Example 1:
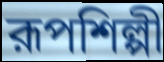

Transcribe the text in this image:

রূপশিল্পী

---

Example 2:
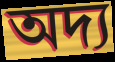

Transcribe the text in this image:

অদ্য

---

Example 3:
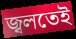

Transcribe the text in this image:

জ্বলতেই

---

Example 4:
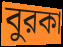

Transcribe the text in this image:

বুরকা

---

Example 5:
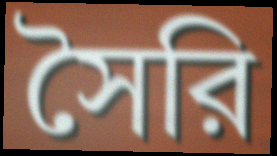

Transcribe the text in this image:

সৈরি